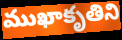
ముఖాకృతిని